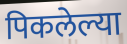
पिकलेल्या